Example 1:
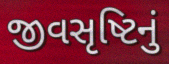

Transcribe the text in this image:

જીવસૃષ્ટિનું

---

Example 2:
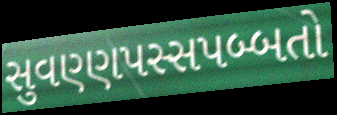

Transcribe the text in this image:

સુવણ્ણપસ્સપબ્બતો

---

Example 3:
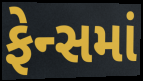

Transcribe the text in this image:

ફેન્સમાં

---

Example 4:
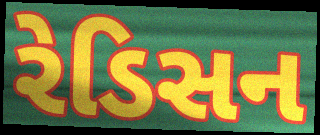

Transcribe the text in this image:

રેડિસન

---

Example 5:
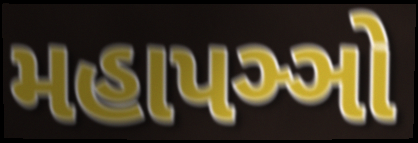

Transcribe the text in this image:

મહાપઞ્ઞો